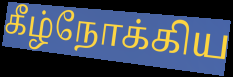
கீழ்நோக்கிய